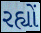
રહ્યોં